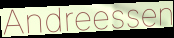
Andreessen